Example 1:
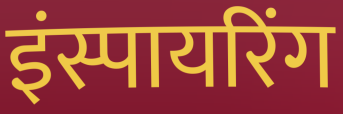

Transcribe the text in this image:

इंस्पायरिंग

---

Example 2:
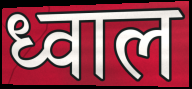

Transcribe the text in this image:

ध्वाल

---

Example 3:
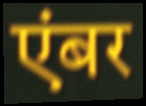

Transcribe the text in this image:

एंबर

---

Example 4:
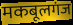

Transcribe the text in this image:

मकबूलगंज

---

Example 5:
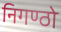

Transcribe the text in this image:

निगण्ठो